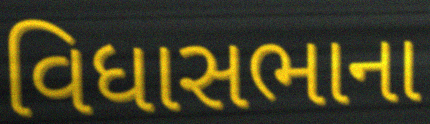
વિધાસભાના